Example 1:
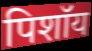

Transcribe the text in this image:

पिशॉय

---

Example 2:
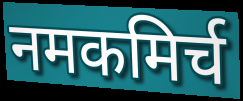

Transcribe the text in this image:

नमकमिर्च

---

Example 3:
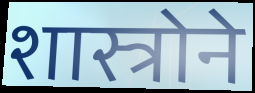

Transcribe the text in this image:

शास्त्रोने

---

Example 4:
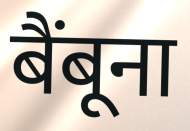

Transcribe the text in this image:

बैंबूना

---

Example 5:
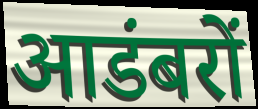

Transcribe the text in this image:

आडंबरों